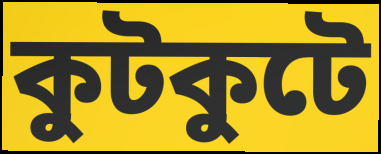
কুটকুটে